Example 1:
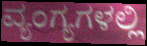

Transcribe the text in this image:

ವ್ಯಂಗ್ಯಗಳಲ್ಲಿ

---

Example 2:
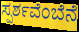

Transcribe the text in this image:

ಸ್ಪರ್ಶವೆಂಬೆನೆ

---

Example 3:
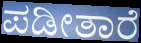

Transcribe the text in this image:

ಪಡೀತಾರೆ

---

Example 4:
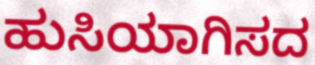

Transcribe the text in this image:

ಹುಸಿಯಾಗಿಸದ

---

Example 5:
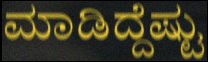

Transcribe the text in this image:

ಮಾಡಿದ್ದೆಷ್ಟು